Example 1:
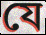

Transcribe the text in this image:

যে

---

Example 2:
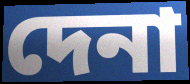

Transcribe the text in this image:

দেনা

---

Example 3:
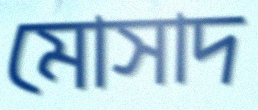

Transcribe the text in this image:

মোসাদ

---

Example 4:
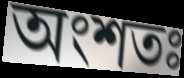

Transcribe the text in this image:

অংশতঃ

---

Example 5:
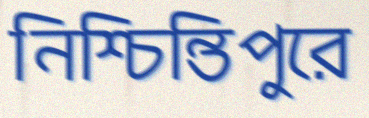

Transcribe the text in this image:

নিশ্চিন্তিপুরে